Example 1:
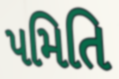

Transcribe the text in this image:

પમિતિ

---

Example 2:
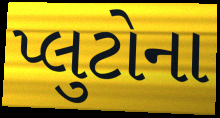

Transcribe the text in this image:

પ્લુટોના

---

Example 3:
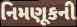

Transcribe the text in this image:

નિમણૂકની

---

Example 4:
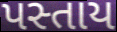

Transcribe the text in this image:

પસ્તાય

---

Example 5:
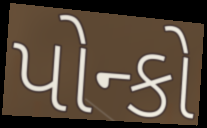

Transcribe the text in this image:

પોન્કો